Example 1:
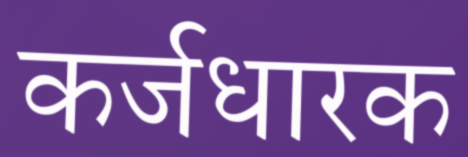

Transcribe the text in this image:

कर्जधारक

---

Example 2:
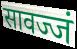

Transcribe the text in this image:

सावज्जं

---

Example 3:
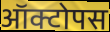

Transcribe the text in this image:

ऑक्टोपस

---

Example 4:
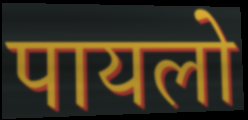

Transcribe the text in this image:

पायलो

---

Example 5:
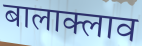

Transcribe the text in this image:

बालाक्लाव